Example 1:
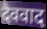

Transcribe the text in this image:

दैववाद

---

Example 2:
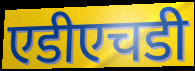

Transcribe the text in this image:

एडीएचडी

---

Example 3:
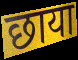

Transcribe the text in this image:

छाया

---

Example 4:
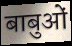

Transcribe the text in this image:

बाबुओं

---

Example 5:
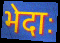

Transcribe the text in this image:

भेदाः